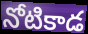
నోటికాడ